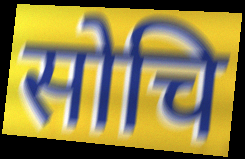
सोचि